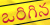
ఒరిగిన